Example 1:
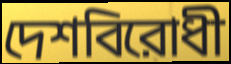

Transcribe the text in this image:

দেশবিরোধী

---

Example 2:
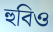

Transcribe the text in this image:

হুবিও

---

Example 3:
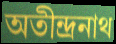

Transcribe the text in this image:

অতীন্দ্রনাথ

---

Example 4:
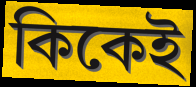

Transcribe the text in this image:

কিকেই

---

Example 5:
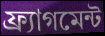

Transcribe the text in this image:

ফ্র্যাগমেন্ট